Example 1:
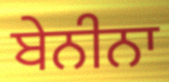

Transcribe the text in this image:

ਬੇਨੀਨਾ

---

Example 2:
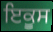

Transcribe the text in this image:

ਇਕੂਸ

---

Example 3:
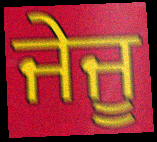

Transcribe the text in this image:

ਜੇਜੂ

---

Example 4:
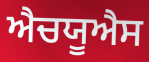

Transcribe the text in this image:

ਐਚਯੂਐਸ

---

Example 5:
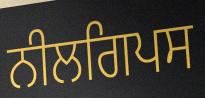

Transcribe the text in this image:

ਨੀਲਗਿਪਸ